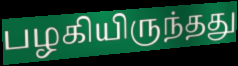
பழகியிருந்தது